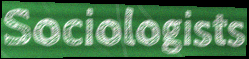
Sociologists